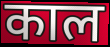
काल